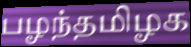
பழந்தமிழக